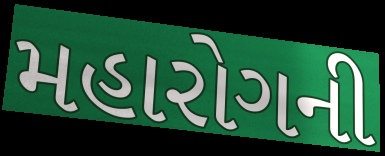
મહારોગની